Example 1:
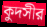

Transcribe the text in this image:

কুদসীর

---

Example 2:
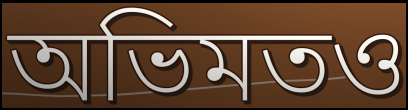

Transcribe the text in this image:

অভিমতও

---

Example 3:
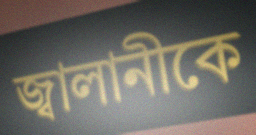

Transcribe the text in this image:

জ্বালানীকে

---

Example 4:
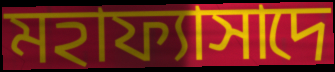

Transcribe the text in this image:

মহাফ্যাসাদে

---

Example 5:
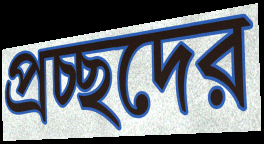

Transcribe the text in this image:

প্রচ্ছদের